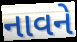
નાવને